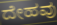
ದೇಹವು